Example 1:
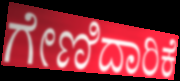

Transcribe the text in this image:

ಗೇಣಿದಾರಿಕೆ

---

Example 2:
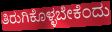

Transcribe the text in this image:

ತಿರುಗಿಕೊಳ್ಳಬೇಕೆಂದು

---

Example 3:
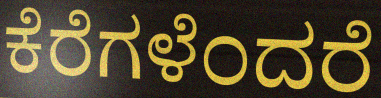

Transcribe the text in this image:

ಕೆರೆಗಳೆಂದರೆ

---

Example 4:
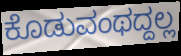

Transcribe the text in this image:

ಕೊಡುವಂಥದ್ದಲ್ಲ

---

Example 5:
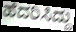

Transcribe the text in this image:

ಹೆದರಿಸಿದ್ದು